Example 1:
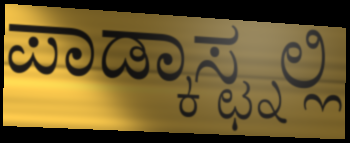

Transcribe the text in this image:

ಪಾಡ್ಕಾಸ್ಟ್ನಲ್ಲಿ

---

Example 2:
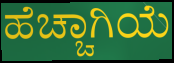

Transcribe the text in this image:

ಹೆಚ್ಚಾಗಿಯೆ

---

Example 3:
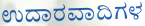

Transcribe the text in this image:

ಉದಾರವಾದಿಗಳ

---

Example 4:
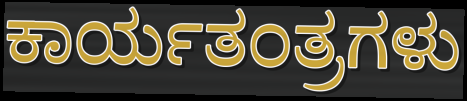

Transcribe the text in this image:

ಕಾರ್ಯತಂತ್ರಗಳು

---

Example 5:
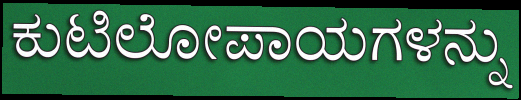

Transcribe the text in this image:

ಕುಟಿಲೋಪಾಯಗಳನ್ನು